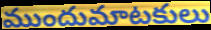
ముందుమాటకులు